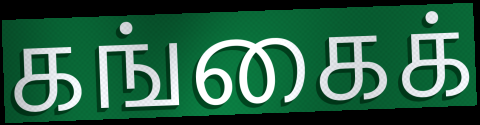
கங்கைக்